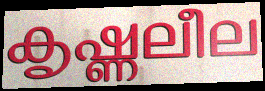
കൃഷ്ണലീല